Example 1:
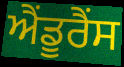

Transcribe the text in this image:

ਐਂਡੂਰੈਂਸ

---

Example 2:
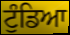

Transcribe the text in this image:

ਟੁੰਡਿਆ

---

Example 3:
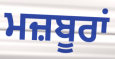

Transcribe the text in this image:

ਮਜ਼ਬੂਰਾਂ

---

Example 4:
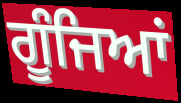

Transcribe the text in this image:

ਗੂੰਜਿਆਂ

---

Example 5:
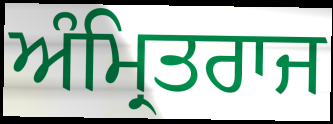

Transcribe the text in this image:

ਅੰਮ੍ਰਿਤਰਾਜ